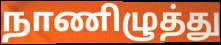
நாணிழுத்து